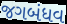
જગબંધવ